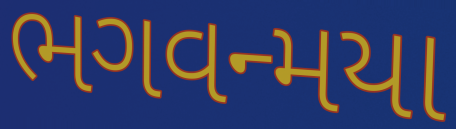
ભગવન્મયા